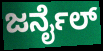
ಜರ್ನೈಲ್